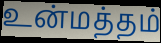
உன்மத்தம்